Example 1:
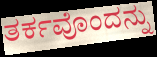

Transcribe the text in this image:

ತರ್ಕವೊಂದನ್ನು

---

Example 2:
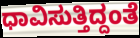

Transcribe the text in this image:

ಧಾವಿಸುತ್ತಿದ್ದಂತೆ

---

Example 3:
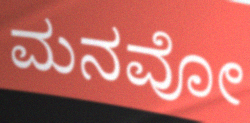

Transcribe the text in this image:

ಮನವೋ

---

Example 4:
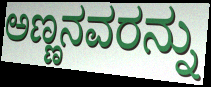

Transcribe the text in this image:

ಅಣ್ಣನವರನ್ನು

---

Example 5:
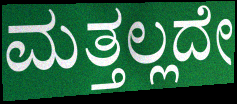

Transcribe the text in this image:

ಮತ್ತಲ್ಲದೇ